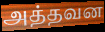
அத்தவன